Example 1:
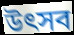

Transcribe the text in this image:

উত্‍সব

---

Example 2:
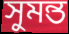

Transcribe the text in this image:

সুমন্ত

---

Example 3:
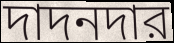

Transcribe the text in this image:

দাদনদার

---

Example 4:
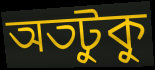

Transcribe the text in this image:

অতটুকু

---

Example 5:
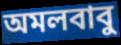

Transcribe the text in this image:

অমলবাবু